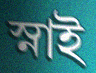
স্নাই